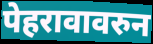
पेहरावावरुन